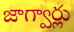
జాగ్వార్లు